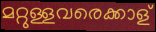
മറ്റുള്ളവരെക്കാള്